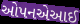
ઓપનએઆઈ